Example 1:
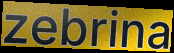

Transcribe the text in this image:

zebrina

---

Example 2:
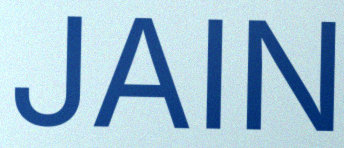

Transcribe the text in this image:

JAIN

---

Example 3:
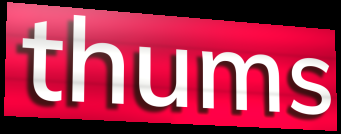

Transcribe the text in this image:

thums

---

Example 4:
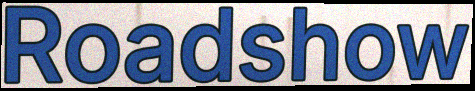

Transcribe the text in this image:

Roadshow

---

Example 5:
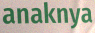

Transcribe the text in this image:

anaknya